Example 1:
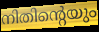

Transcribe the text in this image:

നിതിന്റെയും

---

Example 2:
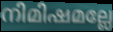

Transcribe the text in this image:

നിമിഷമല്ലേ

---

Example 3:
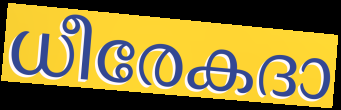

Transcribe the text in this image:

ധീരേകദാ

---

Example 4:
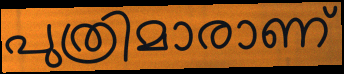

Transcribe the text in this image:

പുത്രിമാരാണ്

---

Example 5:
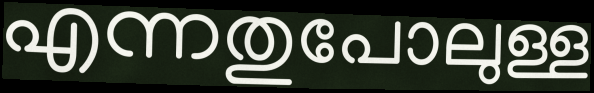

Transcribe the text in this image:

എന്നതുപോലുള്ള